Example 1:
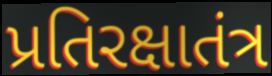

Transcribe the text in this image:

પ્રતિરક્ષાતંત્ર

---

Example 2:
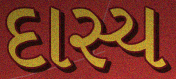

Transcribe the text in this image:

દાસ્ય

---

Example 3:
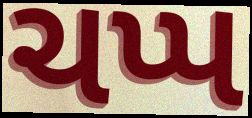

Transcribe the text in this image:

ચપ્પ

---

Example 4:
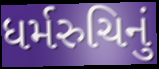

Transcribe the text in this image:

ધર્મરુચિનું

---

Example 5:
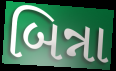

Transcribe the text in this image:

બિન્ના